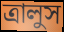
ত্রালুস